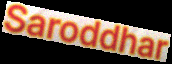
Saroddhar